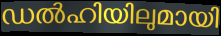
ഡൽഹിയിലുമായി